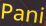
Pani